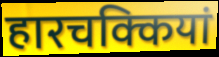
हारचक्कियां